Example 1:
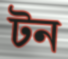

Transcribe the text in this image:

টন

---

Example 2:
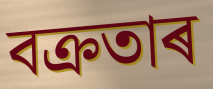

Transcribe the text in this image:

বক্ৰতাৰ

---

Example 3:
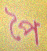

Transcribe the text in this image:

পৈ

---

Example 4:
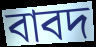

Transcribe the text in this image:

বাবদ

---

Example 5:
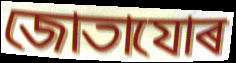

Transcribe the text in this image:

জোতাযোৰ